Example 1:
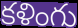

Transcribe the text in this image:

కళింగు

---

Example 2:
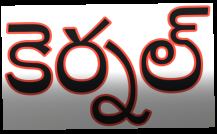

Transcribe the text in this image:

కెర్నల్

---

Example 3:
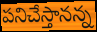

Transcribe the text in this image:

పనిచేస్తానన్న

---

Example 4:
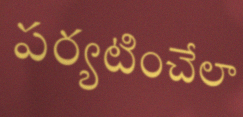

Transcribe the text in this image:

పర్యటించేలా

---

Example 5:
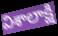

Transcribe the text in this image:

విశాలాక్షి